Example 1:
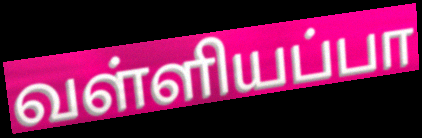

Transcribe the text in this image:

வள்ளியப்பா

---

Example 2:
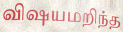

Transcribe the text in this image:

விஷயமறிந்த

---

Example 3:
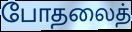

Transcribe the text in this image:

போதலைத்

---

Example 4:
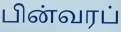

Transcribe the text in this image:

பின்வரப்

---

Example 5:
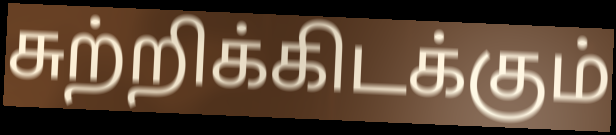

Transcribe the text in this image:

சுற்றிக்கிடக்கும்